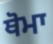
ਥੋਮਾ